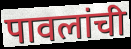
पावलांची